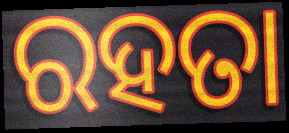
ରହତା